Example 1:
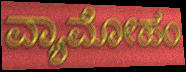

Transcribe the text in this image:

ವ್ಯಾಮೋಹಂ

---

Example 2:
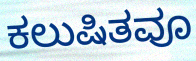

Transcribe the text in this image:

ಕಲುಷಿತವೂ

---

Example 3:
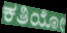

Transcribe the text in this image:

ಕತಿಯೋ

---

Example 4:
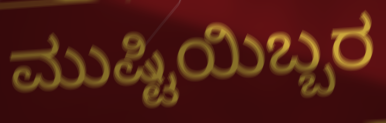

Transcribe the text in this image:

ಮುಷ್ಟಿಯಿಬ್ಬರ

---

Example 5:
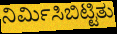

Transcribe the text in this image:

ನಿರ್ಮಿಸಿಬಿಟ್ಟಿತು